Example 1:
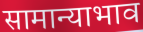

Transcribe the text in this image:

सामान्याभाव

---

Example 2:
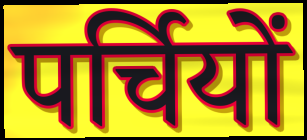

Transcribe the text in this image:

पर्चियों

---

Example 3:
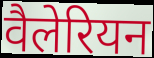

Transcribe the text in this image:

वैलेरियन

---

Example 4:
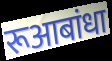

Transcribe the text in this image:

रूआबांधा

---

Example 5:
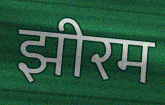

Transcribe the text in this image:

झीरम